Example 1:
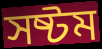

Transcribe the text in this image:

সষ্টম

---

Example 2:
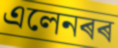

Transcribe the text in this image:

এলেনৰৰ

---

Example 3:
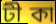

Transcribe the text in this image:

টীকা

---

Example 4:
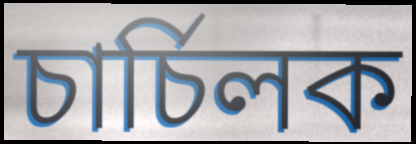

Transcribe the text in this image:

চাৰ্চিলক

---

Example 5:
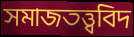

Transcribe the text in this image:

সমাজতত্ত্ববিদ